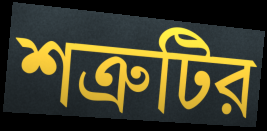
শত্রুটির